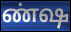
ண்ஷ